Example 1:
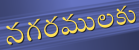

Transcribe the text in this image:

నగరములకు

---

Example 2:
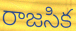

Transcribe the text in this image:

రాజసిక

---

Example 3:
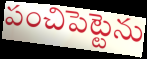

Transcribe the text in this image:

పంచిపెట్టెను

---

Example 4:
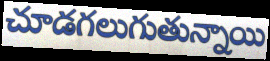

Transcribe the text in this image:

చూడగలుగుతున్నాయి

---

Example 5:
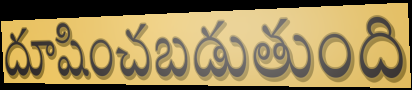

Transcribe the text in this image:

దూషించబడుతుంది